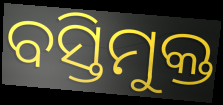
ବସ୍ତିମୁକ୍ତ